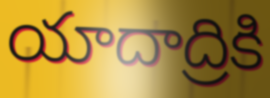
యాదాద్రికి